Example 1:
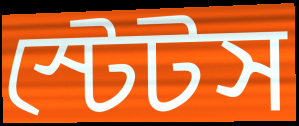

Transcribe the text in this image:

স্টেটস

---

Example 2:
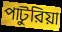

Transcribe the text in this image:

পাটুরিয়া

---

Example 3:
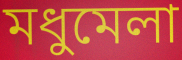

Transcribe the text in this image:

মধুমেলা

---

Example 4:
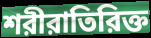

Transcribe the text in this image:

শরীরাতিরিক্ত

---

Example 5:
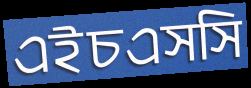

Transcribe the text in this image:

এইচএসসি